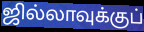
ஜில்லாவுக்குப்